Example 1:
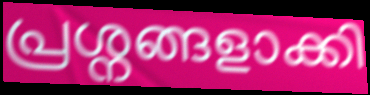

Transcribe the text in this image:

പ്രശ്നങ്ങളാക്കി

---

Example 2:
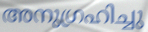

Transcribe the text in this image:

അനുഗ്രഹിച്ചു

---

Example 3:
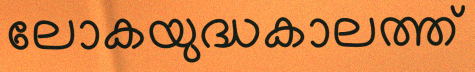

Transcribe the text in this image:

ലോകയുദ്ധകാലത്ത്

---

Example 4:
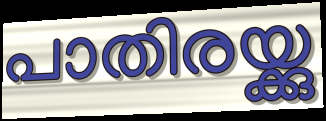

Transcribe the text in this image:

പാതിരയ്ക്കു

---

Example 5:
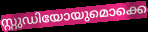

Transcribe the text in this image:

സ്റ്റുഡിയോയുമൊക്കെ